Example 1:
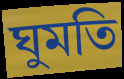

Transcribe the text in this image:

ঘুমতি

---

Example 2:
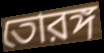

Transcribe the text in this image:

তোরঙ্গ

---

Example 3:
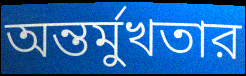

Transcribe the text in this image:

অন্তর্মুখতার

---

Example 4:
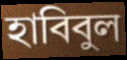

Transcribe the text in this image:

হাবিবুল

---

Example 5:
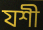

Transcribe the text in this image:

যশী